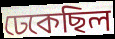
ঢেকেছিল